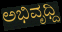
ಅಭಿವೃಧ್ದಿ